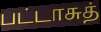
பட்டாசுத்